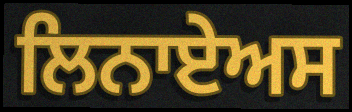
ਲਿਨਾਏਅਸ